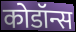
कोडॉन्स